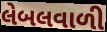
લેબલવાળી